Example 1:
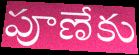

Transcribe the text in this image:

పూణేకు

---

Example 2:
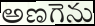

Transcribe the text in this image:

అణగెను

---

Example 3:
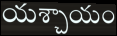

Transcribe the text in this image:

యశ్చాయం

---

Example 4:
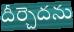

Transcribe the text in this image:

దీర్చెదను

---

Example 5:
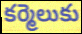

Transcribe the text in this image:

కర్మెలుకు